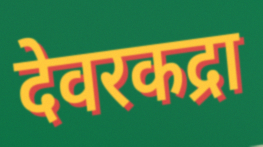
देवरकद्रा